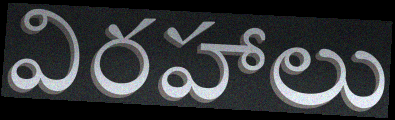
విరహాలు